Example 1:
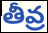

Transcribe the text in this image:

తీవ్ర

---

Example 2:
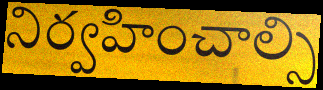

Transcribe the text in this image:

నిర్వహించాల్సి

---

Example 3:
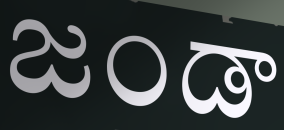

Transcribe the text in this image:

జండా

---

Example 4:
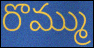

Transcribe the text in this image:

రొమ్ము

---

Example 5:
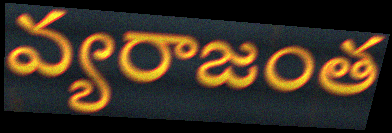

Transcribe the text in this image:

వ్యరాజంత